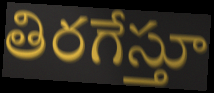
తిరగేస్తూ